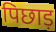
पिछाड़